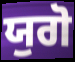
ਯੁਗੋ